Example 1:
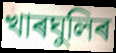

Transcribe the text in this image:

খাৰঘুলিৰ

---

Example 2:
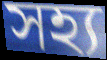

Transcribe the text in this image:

সহ্য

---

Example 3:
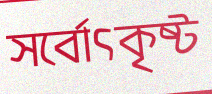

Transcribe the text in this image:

সৰ্বোৎকৃষ্ট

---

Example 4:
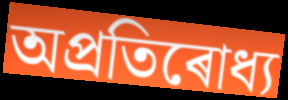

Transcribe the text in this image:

অপ্ৰতিৰোধ্য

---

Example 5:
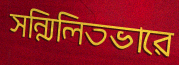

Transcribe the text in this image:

সন্মিলিতভাৱে